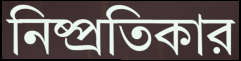
নিষ্প্রতিকার